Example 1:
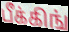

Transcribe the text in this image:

பீக்கிங்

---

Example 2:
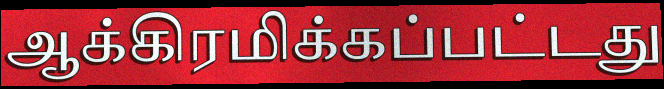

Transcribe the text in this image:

ஆக்கிரமிக்கப்பட்டது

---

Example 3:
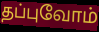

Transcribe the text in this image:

தப்புவோம்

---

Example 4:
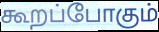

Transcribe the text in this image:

கூறப்போகும்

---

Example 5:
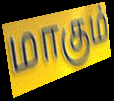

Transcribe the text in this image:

மாகும்